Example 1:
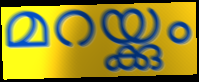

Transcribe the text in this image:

മറയ്ക്കും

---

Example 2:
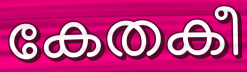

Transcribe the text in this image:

കേതകീ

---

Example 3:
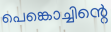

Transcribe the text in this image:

പെങ്കൊച്ചിന്റെ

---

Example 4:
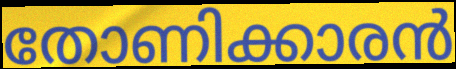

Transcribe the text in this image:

തോണിക്കാരൻ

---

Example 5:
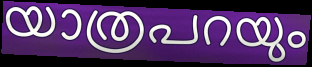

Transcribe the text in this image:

യാത്രപറയും